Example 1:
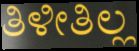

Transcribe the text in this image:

ತಿಳೀತಿಲ್ಲ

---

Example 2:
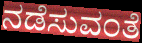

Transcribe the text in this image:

ನಡೆಸುವಂತೆ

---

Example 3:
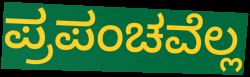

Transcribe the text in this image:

ಪ್ರಪಂಚವೆಲ್ಲ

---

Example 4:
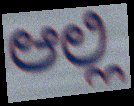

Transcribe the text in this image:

ಆಲ್ಲಿ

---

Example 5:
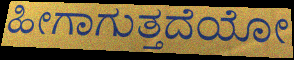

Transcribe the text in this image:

ಹೀಗಾಗುತ್ತದೆಯೋ